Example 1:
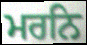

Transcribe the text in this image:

ਮਰਨਿ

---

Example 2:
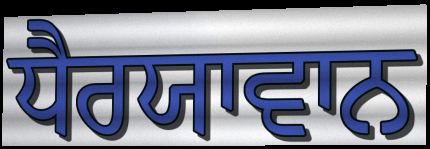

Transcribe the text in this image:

ਧੈਰਯਾਵਾਨ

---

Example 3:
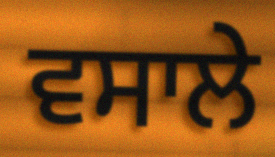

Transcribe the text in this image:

ਵਸਾਲੇ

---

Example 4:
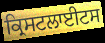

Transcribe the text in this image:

ਕ੍ਰਿਸਟਲਾਈਟਸ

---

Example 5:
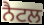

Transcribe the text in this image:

ਨੈਟਲ